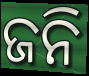
ଜନି